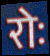
रोः